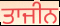
ਤਾਜੀਨ